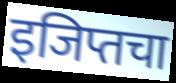
इजिप्तचा